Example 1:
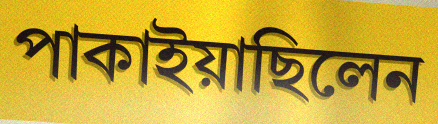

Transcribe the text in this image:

পাকাইয়াছিলেন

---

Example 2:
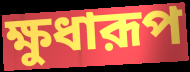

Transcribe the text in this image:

ক্ষুধারূপ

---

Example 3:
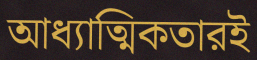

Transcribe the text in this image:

আধ্যাত্মিকতারই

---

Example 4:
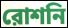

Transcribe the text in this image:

রোশনি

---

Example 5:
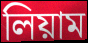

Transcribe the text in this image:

লিয়াম